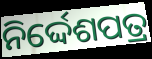
ନିର୍ଦ୍ଦେଶପତ୍ର